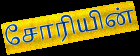
சோரியின்